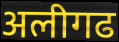
अलीगढ